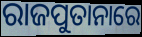
ରାଜପୁତାନାରେ